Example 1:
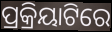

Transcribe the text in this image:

ପ୍ରକ୍ରିୟାଟିରେ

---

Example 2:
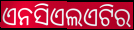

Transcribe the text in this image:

ଏନସିଏଲଏଟିର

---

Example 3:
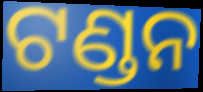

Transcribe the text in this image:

ଟଣ୍ଡନ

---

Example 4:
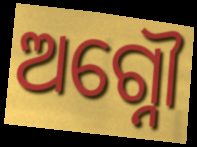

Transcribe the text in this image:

ଅଗ୍ନୌ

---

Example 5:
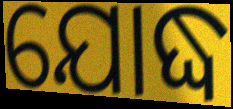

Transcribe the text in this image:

ଯୋଦ୍ଧ